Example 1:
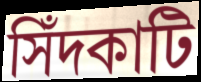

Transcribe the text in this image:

সিঁদকাটি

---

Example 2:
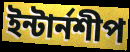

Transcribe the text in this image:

ইন্টার্নশীপ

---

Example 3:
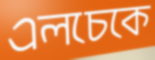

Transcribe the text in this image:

এলচেকে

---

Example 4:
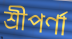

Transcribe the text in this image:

শ্রীপর্ণা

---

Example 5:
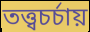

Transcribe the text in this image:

তত্ত্বচর্চায়